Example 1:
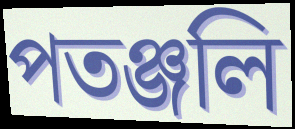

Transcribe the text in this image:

পতঞ্জলি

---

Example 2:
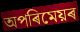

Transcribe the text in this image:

অপৰিমেয়ৰ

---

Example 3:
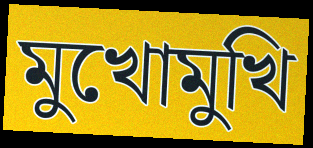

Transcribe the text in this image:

মুখোমুখি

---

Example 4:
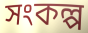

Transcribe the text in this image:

সংকল্প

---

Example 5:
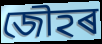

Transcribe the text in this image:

জৌহৰ